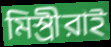
মিস্ত্রীরাই